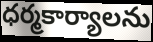
ధర్మకార్యాలను